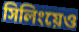
সিলিংয়েও